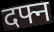
दफ्न